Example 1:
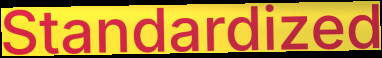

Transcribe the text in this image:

Standardized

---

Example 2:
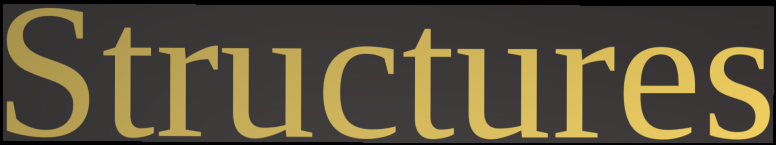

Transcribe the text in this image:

Structures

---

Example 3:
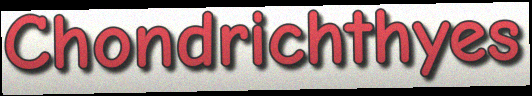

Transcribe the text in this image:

Chondrichthyes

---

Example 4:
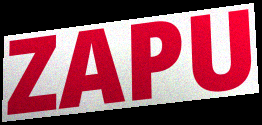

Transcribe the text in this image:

ZAPU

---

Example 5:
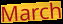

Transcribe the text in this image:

March